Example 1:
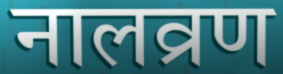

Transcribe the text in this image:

नालव्रण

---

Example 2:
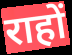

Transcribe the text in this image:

राहों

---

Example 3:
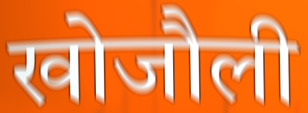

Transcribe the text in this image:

खोजौली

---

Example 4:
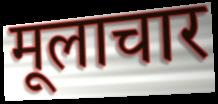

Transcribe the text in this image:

मूलाचार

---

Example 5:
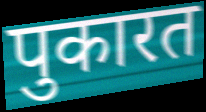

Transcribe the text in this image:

पुकारत